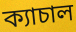
ক্যাচাল